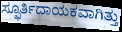
ಸ್ಫೂರ್ತಿದಾಯಕವಾಗಿತ್ತು